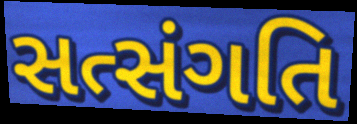
સત્સંગતિ